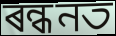
ৰন্ধনত